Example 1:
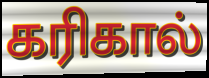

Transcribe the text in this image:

கரிகால்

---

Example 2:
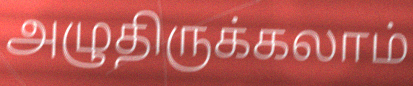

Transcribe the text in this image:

அழுதிருக்கலாம்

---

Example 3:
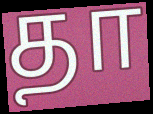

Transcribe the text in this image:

தா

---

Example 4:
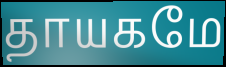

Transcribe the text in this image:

தாயகமே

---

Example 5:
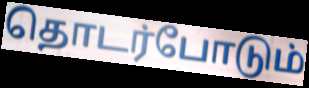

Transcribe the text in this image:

தொடர்போடும்